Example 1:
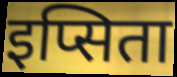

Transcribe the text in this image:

इप्सिता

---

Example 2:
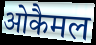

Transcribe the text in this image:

ओकैमल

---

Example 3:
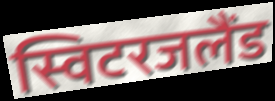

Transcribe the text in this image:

स्विटरजलैंड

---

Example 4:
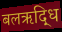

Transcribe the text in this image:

बलऋद्धि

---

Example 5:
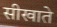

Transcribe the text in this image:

सीखाते